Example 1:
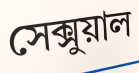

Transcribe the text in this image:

সেক্সুয়াল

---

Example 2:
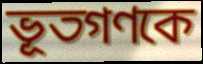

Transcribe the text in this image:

ভূতগণকে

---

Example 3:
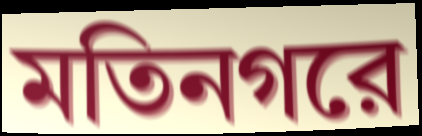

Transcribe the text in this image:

মতিনগরে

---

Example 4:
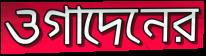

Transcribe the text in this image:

ওগাদেনের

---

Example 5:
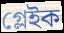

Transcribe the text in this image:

গ্লেইক